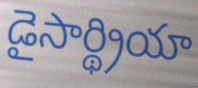
డైసార్థ్రియా